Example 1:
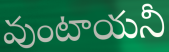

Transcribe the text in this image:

వుంటాయనీ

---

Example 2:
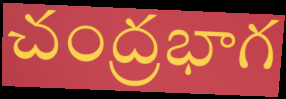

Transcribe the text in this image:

చంద్రభాగ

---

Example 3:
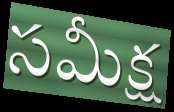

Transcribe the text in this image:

సమీక్ష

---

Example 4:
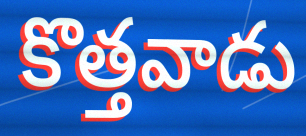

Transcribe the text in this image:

కొత్తవాడు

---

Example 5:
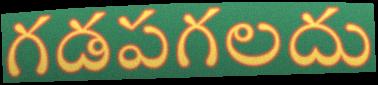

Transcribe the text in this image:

గడపగలదు